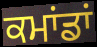
ਕਮਾਂਡਾਂ